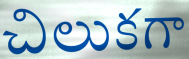
చిలుకగా